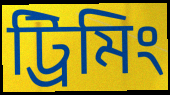
ট্রিমিং